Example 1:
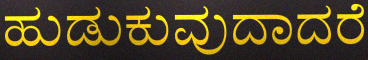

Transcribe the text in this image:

ಹುಡುಕುವುದಾದರೆ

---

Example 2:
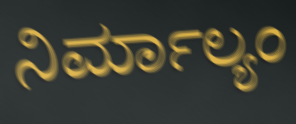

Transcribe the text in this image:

ನಿರ್ಮಾಲ್ಯಂ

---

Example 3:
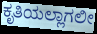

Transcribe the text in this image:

ಕೃತಿಯಲ್ಲಾಗಲೀ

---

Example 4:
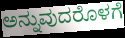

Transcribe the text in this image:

ಅನ್ನುವುದರೊಳಗೆ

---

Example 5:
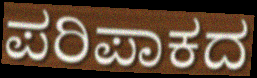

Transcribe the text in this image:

ಪರಿಪಾಕದ